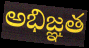
అభిజ్ఞత